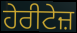
ਹੇਰੀਟੇਜ਼